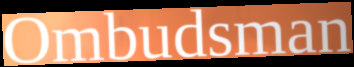
Ombudsman